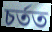
চৰ্তত